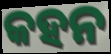
କହନ